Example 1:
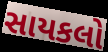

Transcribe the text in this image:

સાયકલો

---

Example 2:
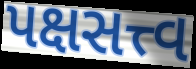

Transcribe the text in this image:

પક્ષસત્ત્વ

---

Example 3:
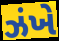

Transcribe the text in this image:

ઝંખે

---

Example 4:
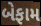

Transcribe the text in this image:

બેફામ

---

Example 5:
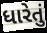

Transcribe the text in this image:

ધારેતું